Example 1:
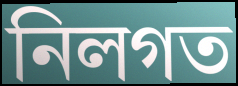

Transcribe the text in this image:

নিলগত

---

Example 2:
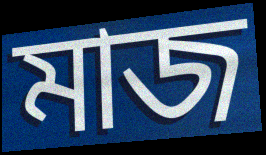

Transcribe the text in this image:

মাজ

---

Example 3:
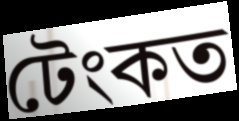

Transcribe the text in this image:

টেংকত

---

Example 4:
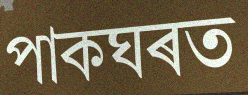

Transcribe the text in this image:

পাকঘৰত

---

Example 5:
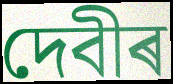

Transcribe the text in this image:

দেবীৰ